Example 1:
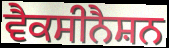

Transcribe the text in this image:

ਵੈਕਸੀਨੈਸ਼ਨ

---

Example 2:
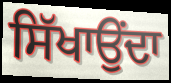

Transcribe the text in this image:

ਸਿੱਖਾਉਂਦਾ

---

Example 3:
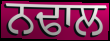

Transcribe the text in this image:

ਨਢਾਲ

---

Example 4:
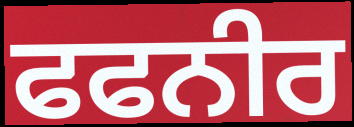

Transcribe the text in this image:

ਫਫਨੀਰ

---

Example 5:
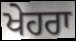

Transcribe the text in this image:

ਖੇਹਰਾ